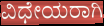
ವಿಧೇಯರಾಗಿ